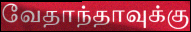
வேதாந்தாவுக்கு